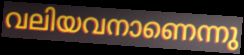
വലിയവനാണെന്നു